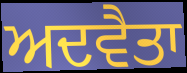
ਅਦਵੈਤਾ